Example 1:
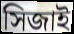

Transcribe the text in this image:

সিজাই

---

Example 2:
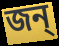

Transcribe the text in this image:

জন্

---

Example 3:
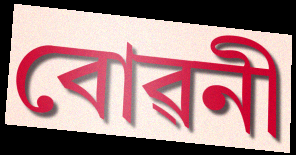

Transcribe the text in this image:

বোৱনী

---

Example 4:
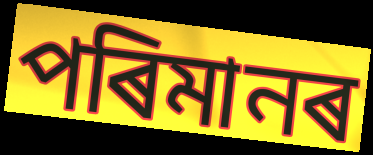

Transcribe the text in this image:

পৰিমানৰ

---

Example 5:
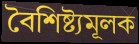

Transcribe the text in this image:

বৈশিষ্ট্যমূলক